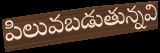
పిలువబడుతున్నవి